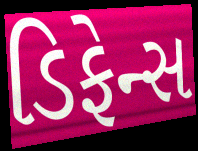
ડિફેન્સ